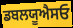
ਡਬਲਯੂਐਸਓ